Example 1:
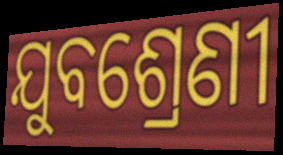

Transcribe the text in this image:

ଯୁବଶ୍ରେଣୀ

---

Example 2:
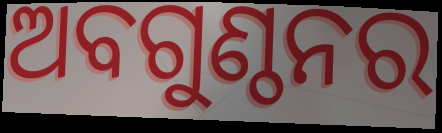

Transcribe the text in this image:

ଅବଗୁଣ୍ଠନର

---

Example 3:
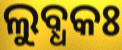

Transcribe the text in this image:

ଲୁବ୍ଧକଃ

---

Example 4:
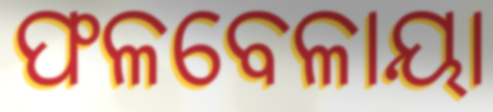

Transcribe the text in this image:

ଫଳବେଳାୟା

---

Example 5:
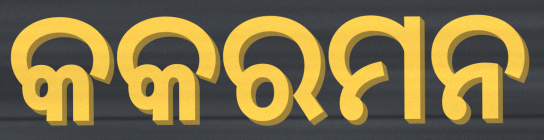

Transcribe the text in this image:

କକରମନ